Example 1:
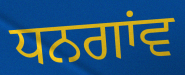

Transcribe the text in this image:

ਧਨਗਾਂਵ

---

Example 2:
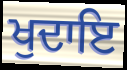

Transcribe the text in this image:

ਖੁਦਾਇ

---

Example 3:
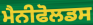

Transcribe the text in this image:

ਮੈਨੀਫੋਲਡਸ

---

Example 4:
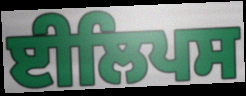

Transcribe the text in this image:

ਈਲਿਪਸ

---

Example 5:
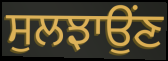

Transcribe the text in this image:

ਸੁਲਝਾਉਂਣ